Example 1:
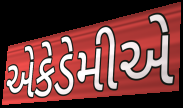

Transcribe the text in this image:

એકેડેમીએ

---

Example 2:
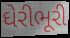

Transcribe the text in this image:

ઘેરીભૂરી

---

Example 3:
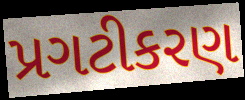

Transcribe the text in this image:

પ્રગટીકરણ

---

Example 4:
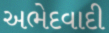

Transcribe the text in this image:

અભેદવાદી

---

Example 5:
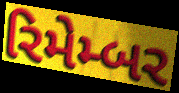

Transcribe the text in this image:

રિમેમ્બર